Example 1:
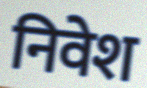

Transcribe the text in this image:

निवेश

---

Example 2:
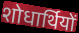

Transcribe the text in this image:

शोधार्थियों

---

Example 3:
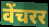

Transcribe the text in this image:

वेंचरर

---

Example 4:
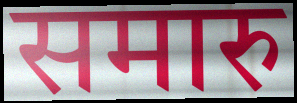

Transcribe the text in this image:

समारु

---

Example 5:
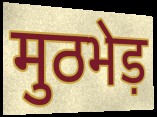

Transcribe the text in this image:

मुठभेड़